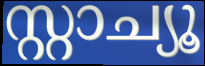
സ്റ്റാച്യൂ